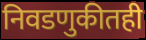
निवडणुकीतही